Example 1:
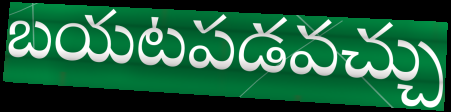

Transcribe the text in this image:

బయటపడవచ్చు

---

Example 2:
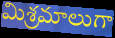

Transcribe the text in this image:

మిశ్రమాలుగా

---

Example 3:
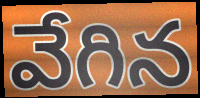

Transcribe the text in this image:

వేగిన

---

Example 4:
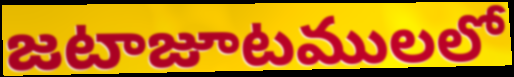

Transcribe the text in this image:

జటాజూటములలో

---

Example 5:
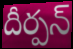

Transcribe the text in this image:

దీర్పన్